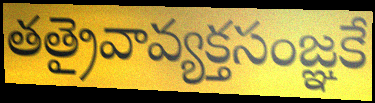
తత్రైవావ్యక్తసంజ్ఞకే